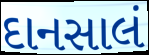
દાનસાલં